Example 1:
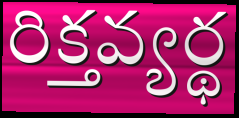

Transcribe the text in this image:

రిక్తవ్యర్థ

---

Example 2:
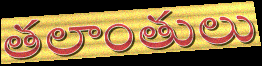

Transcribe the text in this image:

తలాంతులు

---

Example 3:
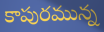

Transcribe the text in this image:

కాపురమున్న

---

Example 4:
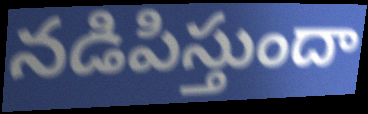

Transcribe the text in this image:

నడిపిస్తుందా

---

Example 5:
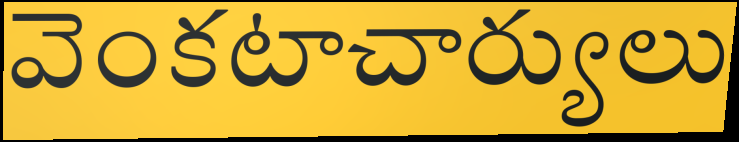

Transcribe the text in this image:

వెంకటాచార్యులు